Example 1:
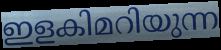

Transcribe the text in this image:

ഇളകിമറിയുന്ന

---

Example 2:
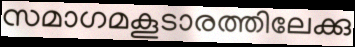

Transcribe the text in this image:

സമാഗമകൂടാരത്തിലേക്കു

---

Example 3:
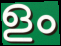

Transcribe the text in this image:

ളം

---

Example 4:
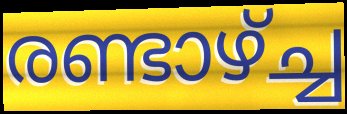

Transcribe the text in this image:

രണ്ടാഴ്ച്ച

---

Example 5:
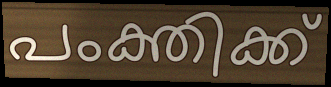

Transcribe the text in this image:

പംക്തിക്ക്